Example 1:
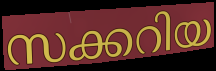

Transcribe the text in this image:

സക്കറിയ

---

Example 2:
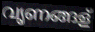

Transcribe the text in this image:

വൃണങ്ങള്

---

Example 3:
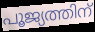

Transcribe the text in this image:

പൂജ്യത്തിന്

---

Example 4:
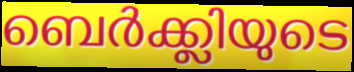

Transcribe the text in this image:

ബെർക്ക്ലിയുടെ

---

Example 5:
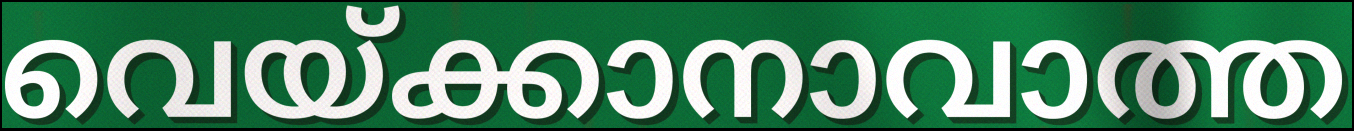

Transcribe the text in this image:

വെയ്ക്കാനാവാത്ത